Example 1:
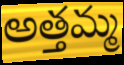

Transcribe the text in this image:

అత్తమ్మ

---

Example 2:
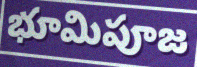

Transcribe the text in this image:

భూమిపూజ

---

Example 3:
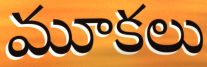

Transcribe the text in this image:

మూకలు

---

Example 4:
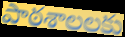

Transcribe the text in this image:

పాఠశాలలకు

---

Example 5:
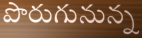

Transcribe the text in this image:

పొరుగునున్న